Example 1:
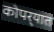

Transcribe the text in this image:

कोपर्‍यात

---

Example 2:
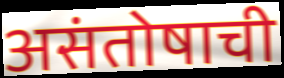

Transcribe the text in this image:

असंतोषाची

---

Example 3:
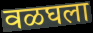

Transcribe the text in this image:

वळघला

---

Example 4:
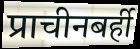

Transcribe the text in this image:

प्राचीनबर्ही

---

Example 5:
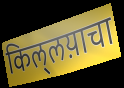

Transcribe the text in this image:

किल्लय़ाचा